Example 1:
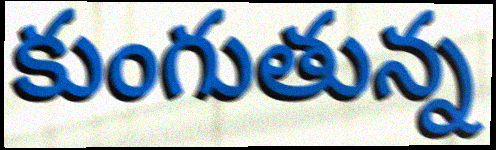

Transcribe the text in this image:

కుంగుతున్న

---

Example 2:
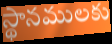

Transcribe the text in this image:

స్థానములకు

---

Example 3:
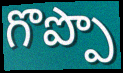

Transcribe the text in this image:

గొప్పొ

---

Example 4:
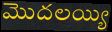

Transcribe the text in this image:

మొదలయ్యి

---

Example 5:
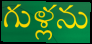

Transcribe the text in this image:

గుళ్లను